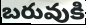
బరువుకి